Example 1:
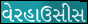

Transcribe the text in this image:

વેરહાઉસીસ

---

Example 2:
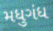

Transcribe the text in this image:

મધુગંધ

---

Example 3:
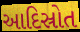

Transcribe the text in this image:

આદિસ્રોત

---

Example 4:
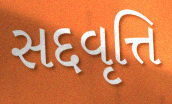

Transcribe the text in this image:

સદ્દવૃત્તિ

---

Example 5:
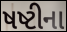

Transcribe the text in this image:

ષષ્ટીના